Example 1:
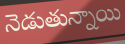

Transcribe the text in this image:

నెడుతున్నాయి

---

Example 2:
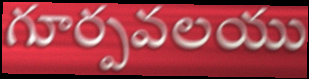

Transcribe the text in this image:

గూర్పవలయు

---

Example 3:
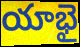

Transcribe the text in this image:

యాభై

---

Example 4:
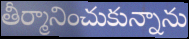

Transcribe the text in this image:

తీర్మానించుకున్నాను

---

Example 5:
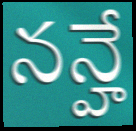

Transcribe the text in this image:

నన్హే